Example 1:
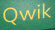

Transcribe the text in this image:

Qwik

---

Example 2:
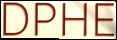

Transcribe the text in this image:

DPHE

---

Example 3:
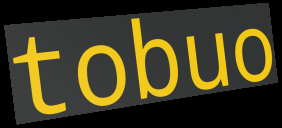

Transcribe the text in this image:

tobuo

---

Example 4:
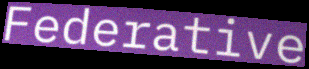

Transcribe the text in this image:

Federative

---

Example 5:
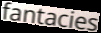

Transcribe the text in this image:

fantacies